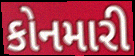
કોનમારી